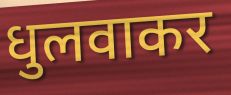
धुलवाकर